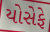
યોસેફે